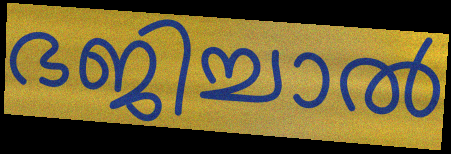
ഭജിച്ചാൽ